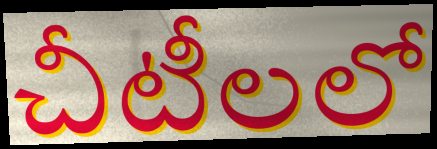
చీటీలలో